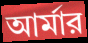
আর্মার